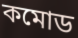
কমোড